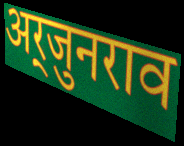
अर्जुनराव